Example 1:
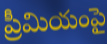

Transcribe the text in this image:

ప్రీమియంపై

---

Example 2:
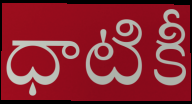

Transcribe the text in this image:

ధాటికీ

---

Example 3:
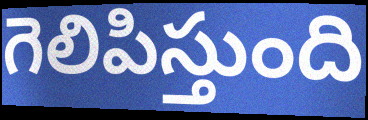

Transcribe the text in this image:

గెలిపిస్తుంది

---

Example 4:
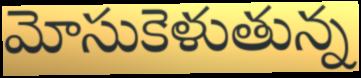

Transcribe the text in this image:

మోసుకెళుతున్న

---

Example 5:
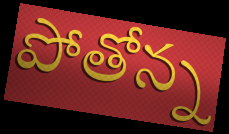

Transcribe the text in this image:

పోతోన్న